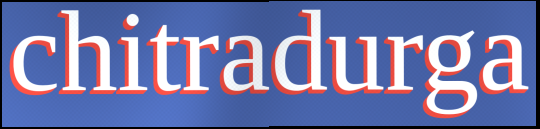
chitradurga